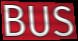
BUS